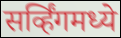
सर्व्हिंगमध्ये